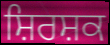
ਸ਼ਿਰਸ਼ਕ